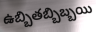
ఉబ్బితబ్బిబ్బయి